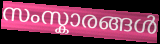
സംസ്കാരങ്ങൾ